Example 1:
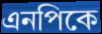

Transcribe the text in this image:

এনপিকে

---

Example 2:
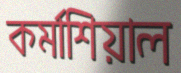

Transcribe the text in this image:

কর্মাশিয়াল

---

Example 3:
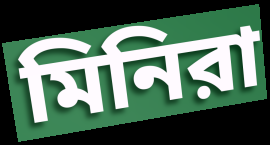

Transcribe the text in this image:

মিনিরা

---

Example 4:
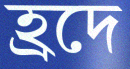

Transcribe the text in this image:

হ্রদে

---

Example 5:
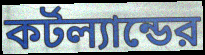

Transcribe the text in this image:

কর্টল্যান্ডের